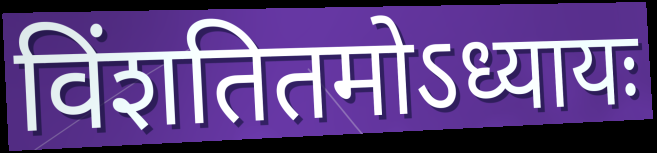
विंशतितमोऽध्यायः